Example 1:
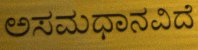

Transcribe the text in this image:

ಅಸಮಧಾನವಿದೆ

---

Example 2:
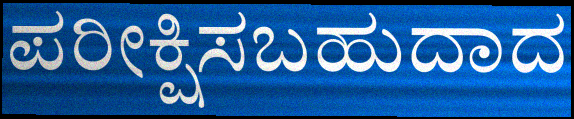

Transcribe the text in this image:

ಪರೀಕ್ಷಿಸಬಹುದಾದ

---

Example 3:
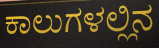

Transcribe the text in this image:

ಕಾಲುಗಳಲ್ಲಿನ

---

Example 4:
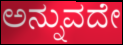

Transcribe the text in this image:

ಅನ್ನುವದೇ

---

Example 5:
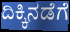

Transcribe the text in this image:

ದಿಕ್ಕಿನಡೆಗೆ